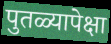
पुतळ्यापेक्षा